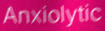
Anxiolytic